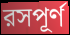
রসপূর্ণ